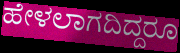
ಹೇಳಲಾಗದಿದ್ದರೂ